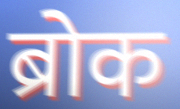
ब्रोक